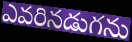
ఎవరినడుగను